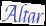
Altar